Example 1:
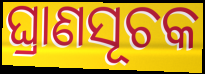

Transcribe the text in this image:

ଘ୍ରାଣସୂଚକ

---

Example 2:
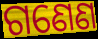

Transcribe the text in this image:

ଗଣେଣ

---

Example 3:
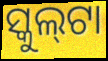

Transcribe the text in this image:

ସ୍କୁଲ୍‍ଟା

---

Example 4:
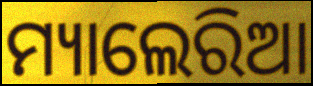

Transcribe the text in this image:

ମ୍ଯାଲେରିଆ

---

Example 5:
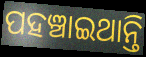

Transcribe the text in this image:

ପହଞ୍ଚାଇଥାନ୍ତି